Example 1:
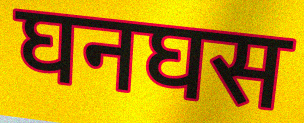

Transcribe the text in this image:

घनघस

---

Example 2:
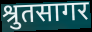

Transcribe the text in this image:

श्रुतसागर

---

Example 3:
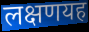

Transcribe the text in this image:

लक्षणयह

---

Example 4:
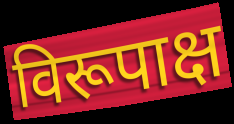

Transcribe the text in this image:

विरूपाक्ष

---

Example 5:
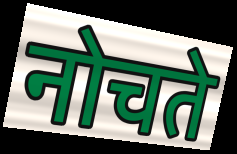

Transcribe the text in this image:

नोचते